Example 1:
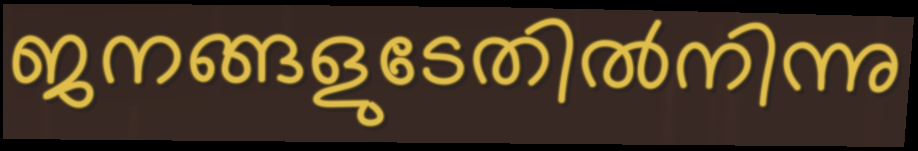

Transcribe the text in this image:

ജനങ്ങളുടേതിൽനിന്നു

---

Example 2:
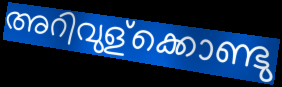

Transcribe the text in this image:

അറിവുള്ക്കൊണ്ടു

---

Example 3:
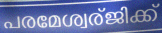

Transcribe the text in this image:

പരമേശ്വര്ജിക്ക്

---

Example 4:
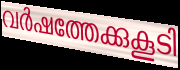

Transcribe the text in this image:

വർഷത്തേക്കുകൂടി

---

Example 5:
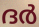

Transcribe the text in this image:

ദർ